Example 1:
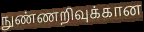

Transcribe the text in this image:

நுண்ணறிவுக்கான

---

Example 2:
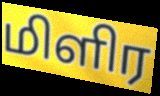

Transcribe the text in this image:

மிளிர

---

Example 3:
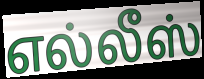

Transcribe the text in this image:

எல்லீஸ்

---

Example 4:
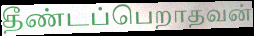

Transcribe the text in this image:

தீண்டப்பெறாதவன்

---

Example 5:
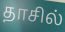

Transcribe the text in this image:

தாசில்